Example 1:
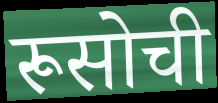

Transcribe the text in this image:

रूसोची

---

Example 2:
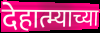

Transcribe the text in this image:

देहात्म्याच्या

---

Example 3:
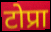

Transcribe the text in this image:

टोप्रा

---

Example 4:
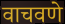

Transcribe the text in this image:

वाचवणे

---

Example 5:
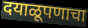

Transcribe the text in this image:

दयाळूपणाचा